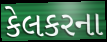
કેલકરના